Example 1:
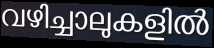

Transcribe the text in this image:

വഴിച്ചാലുകളിൽ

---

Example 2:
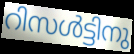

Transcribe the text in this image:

റിസൾട്ടിനു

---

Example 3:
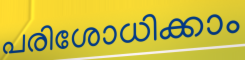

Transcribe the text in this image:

പരിശോധിക്കാം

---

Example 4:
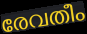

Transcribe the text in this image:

രേവതീം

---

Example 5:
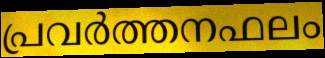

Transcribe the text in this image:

പ്രവർത്തനഫലം